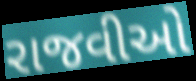
રાજવીઓ